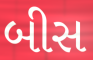
બીસ